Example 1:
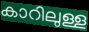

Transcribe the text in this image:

കാറിലുള്ള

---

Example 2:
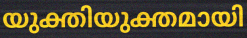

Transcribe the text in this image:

യുക്തിയുക്തമായി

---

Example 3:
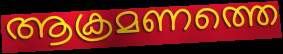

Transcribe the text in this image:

ആക്രമണത്തെ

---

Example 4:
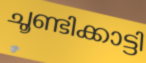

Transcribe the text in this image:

ചൂണ്ടിക്കാട്ടി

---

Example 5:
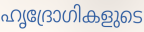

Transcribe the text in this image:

ഹൃദ്രോഗികളുടെ